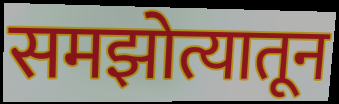
समझोत्यातून